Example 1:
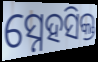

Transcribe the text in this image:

ସ୍ନେହସିକ୍ତ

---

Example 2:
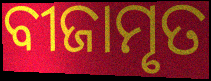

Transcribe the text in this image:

ବୀଜାମୃତ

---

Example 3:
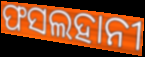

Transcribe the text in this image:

ଫସଲହାନୀ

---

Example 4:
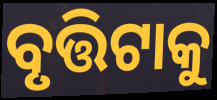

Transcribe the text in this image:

ବୃତ୍ତିଟାକୁ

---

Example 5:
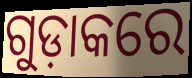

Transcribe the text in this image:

ଗୁଡ଼ାକରେ